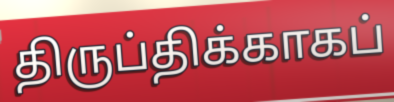
திருப்திக்காகப்